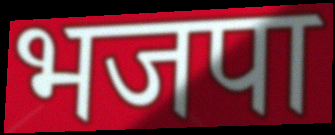
भजपा